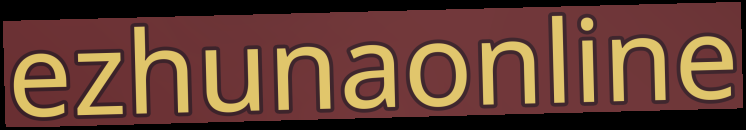
ezhunaonline